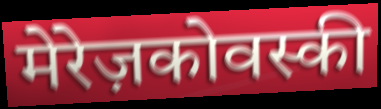
मेरेज़कोवस्की